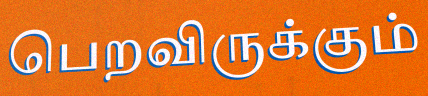
பெறவிருக்கும்